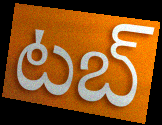
టబ్